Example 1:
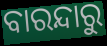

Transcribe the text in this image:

ବାରନ୍ଦାରୁ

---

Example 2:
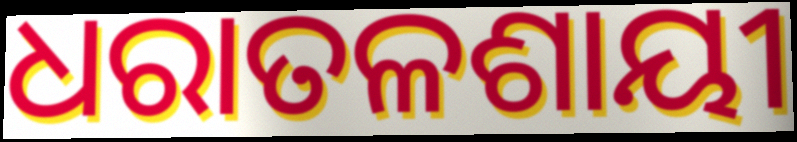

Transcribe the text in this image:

ଧରାତଳଶାୟୀ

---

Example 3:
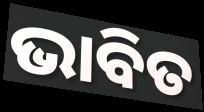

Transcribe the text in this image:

ଭାବିତ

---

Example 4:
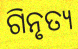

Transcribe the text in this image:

ଗିନୃତ୍ୟ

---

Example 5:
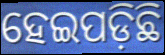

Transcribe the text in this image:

ହେଇପଡ଼ିଛି